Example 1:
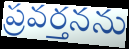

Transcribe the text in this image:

ప్రవర్తనను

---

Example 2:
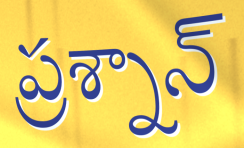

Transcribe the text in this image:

ప్రశ్నాన్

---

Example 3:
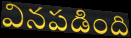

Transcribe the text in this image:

వినపడింది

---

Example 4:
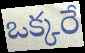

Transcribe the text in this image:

ఒక్కరే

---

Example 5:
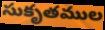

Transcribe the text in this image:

సుకృతముల